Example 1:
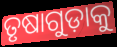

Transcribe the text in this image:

ତୃଷାଗୁଡ଼ାକୁ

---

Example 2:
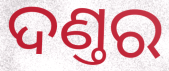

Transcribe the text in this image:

ଦଣ୍ତର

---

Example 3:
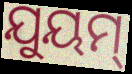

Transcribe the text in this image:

ଯୁୟମ୍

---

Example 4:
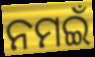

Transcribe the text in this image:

ନମଇଁ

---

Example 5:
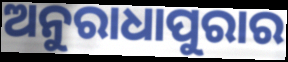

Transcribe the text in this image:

ଅନୁରାଧାପୁରାର